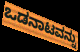
ಒಡನಾಟವನ್ನು